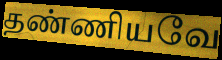
தண்ணியவே